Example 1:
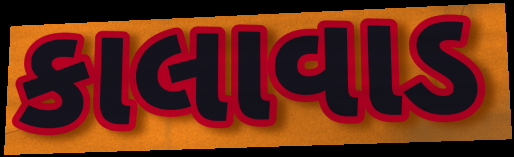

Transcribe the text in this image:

કાલાવાડ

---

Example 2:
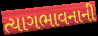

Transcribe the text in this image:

ત્યાગભાવનાની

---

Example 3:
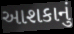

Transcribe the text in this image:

આશકાનું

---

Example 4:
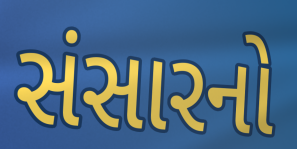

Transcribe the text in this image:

સંસારનો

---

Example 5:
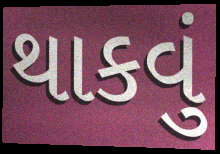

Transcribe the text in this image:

થાકવું